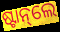
ଷ୍ଟାନ୍‌ଲେ